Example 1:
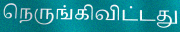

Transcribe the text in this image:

நெருங்கிவிட்டது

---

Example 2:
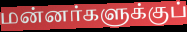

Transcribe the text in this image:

மன்னர்களுக்குப்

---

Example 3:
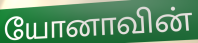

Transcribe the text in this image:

யோனாவின்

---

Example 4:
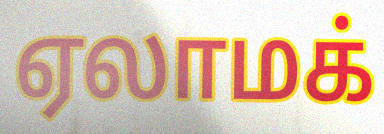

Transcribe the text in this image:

ஏலாமக்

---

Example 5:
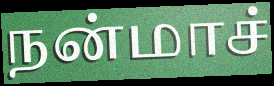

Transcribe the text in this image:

நன்மாச்